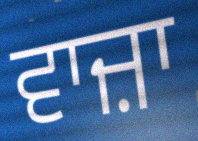
ਵਾਜ਼ਾ